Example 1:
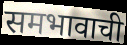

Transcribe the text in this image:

समभावाची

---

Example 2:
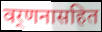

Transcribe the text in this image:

वर्णनासहित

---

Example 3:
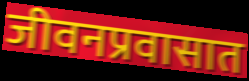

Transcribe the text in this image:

जीवनप्रवासात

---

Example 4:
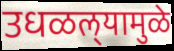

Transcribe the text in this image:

उधळल्यामुळे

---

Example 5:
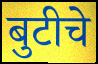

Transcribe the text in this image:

बुटीचे